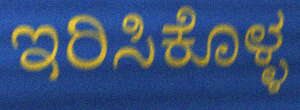
ಇರಿಸಿಕೊಳ್ಳ